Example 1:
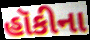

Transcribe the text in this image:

હૉકીના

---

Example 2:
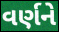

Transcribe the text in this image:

વર્ણને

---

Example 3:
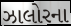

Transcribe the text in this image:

ઝાલોરના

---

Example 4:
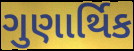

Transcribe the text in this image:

ગુણાર્થિક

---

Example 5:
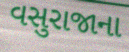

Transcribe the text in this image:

વસુરાજાના